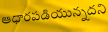
ఆధారపడియున్నదని